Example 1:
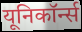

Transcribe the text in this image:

यूनिकॉर्न्स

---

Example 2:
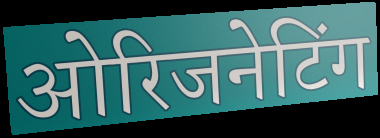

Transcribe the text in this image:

ओरिजनेटिंग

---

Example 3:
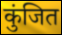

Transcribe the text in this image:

कुंजित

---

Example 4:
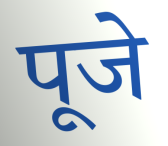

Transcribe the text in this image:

पूजे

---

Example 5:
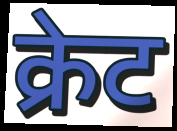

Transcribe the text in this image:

क्रेट